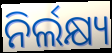
ନିର୍ଲକ୍ଷ୍ୟ